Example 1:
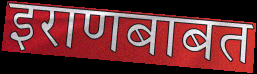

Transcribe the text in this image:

इराणबाबत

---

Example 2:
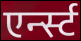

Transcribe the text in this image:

एर्न्स्ट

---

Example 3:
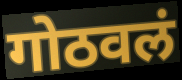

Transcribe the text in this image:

गोठवलं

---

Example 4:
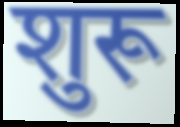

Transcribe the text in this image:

शुरू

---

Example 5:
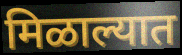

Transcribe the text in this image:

मिळाल्यात